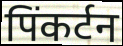
पिंकर्टन